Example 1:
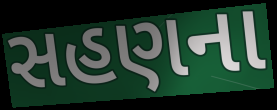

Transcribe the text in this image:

સહણના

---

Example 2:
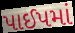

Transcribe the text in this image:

પાઈપમાં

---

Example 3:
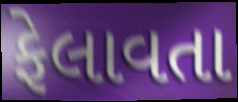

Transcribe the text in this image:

ફેલાવતા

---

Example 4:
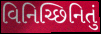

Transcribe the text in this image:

વિનિચ્છિનિતું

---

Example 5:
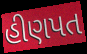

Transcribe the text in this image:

હીણપત